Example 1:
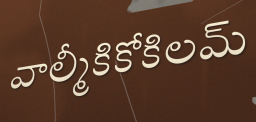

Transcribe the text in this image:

వాల్మీకికోకిలమ్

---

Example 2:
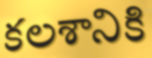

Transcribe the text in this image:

కలశానికి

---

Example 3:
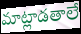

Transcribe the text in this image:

మాట్లాడతాలే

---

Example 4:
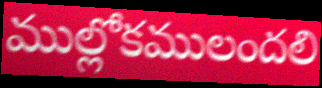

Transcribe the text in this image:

ముల్లోకములందలి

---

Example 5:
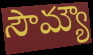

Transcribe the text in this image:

సౌమ్యౌ